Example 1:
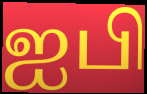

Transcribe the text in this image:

ஐபி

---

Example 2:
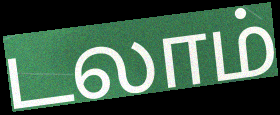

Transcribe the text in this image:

டலாம்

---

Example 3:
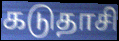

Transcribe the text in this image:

கடுதாசி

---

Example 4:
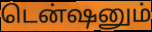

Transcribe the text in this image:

டென்ஷனும்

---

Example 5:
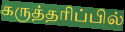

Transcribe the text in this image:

கருத்தரிப்பில்